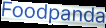
Foodpanda